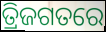
ତ୍ରିଜଗତରେ